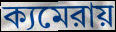
ক্যমেরায়